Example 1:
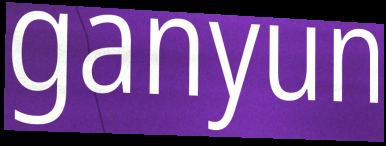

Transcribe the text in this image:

ganyun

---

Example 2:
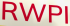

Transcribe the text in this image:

RWPI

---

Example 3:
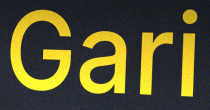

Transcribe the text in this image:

Gari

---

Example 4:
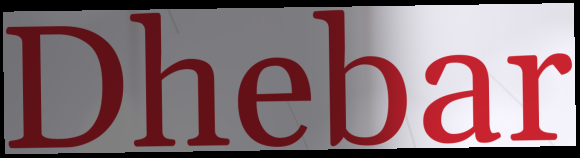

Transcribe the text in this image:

Dhebar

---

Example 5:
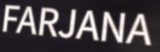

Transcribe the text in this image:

FARJANA